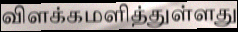
விளக்கமளித்துள்ளது